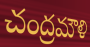
చంద్రమౌళి